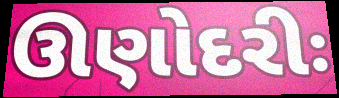
ઊણોદરીઃ